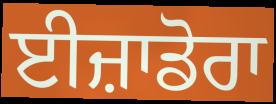
ਈਜ਼ਾਡੋਰਾ